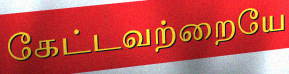
கேட்டவற்றையே